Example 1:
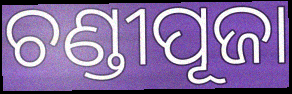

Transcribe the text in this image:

ଚଣ୍ଡୀପୂଜା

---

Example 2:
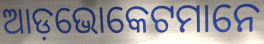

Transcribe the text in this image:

ଆଡ଼ଭୋକେଟମାନେ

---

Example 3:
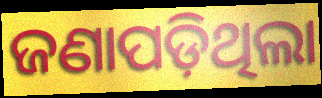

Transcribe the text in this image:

ଜଣାପଡ଼ିଥିଲା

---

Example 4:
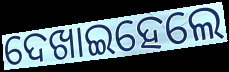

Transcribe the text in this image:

ଦେଖାଇହେଲେ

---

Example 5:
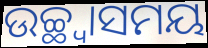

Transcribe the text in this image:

ଉଚ୍ଛ୍ଵାସମୟ